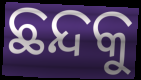
ଛନ୍ଦକୁ